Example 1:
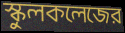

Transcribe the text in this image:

স্কুলকলেজের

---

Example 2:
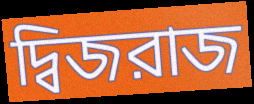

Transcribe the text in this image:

দ্বিজরাজ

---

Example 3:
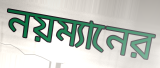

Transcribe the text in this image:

নয়ম্যানের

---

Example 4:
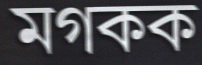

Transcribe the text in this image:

মগকক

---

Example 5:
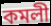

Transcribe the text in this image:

কমলী